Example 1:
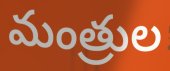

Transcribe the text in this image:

మంత్రుల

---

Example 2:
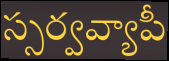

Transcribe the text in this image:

స్సర్వవ్యాపీ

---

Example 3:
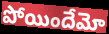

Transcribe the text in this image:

పోయిందేమో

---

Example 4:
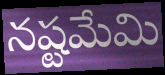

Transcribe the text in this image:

నష్టమేమి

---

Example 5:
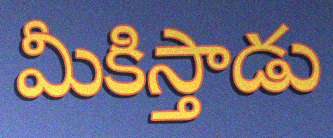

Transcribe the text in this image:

మీకిస్తాడు